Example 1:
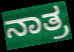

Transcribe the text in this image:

ನಾತ್ರ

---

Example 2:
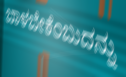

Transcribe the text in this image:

ಬಾಳಬೇಕೆಂಬುದನ್ನು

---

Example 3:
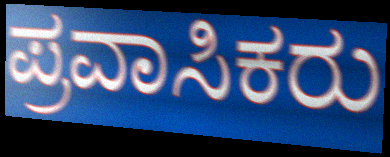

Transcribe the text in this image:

ಪ್ರವಾಸಿಕರು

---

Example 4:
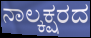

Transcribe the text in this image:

ನಾಲ್ಕಕ್ಷರದ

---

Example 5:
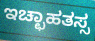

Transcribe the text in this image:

ಇಚ್ಛಾಹತಸ್ಸ